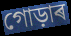
গোড়াৰ